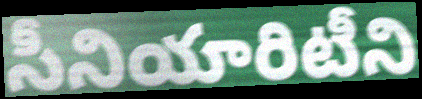
సీనియారిటీని